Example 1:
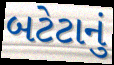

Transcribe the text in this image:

બટેટાનું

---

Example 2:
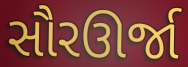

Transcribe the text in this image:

સૌરઊર્જા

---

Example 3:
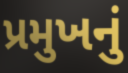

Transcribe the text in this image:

પ્રમુખનું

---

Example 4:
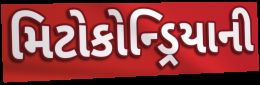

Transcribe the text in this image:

મિટોકોન્ડ્રિયાની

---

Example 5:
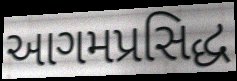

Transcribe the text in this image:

આગમપ્રસિદ્ધ